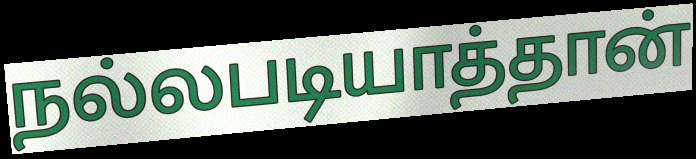
நல்லபடியாத்தான்